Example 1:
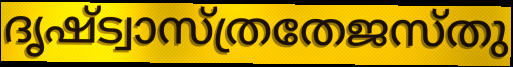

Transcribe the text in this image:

ദൃഷ്ട്വാസ്ത്രതേജസ്തു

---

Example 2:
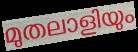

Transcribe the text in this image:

മുതലാളിയും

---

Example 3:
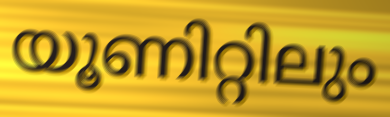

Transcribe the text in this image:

യൂണിറ്റിലും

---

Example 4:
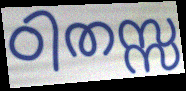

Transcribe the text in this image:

ഠിതസ്സ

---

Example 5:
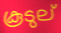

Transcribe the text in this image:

കൂടുല്